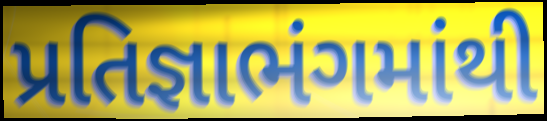
પ્રતિજ્ઞાભંગમાંથી